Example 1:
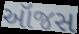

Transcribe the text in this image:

ઑજસ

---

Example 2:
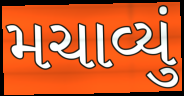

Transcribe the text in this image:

મચાવ્યું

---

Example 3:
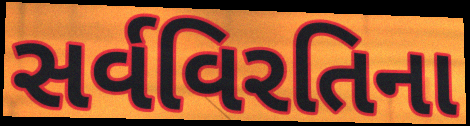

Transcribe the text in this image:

સર્વવિરતિના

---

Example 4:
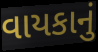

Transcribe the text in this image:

વાયકાનું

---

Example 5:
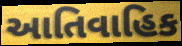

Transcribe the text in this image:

આતિવાહિક